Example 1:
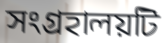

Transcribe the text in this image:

সংগ্রহালয়টি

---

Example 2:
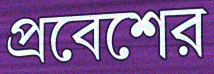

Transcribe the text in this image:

প্রবেশের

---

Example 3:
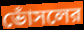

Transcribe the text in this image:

ভোঁসলের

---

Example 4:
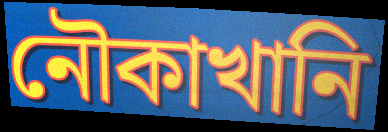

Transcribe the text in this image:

নৌকাখানি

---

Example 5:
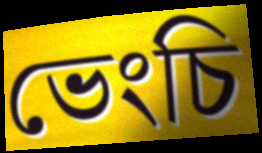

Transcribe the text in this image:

ভেংচি